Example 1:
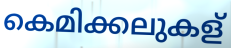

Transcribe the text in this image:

കെമിക്കലുകള്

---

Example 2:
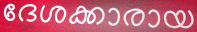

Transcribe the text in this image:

ദേശക്കാരായ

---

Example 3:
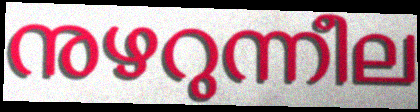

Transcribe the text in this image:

നുഴറുന്നീല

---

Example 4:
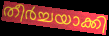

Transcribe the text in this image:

തീർച്ചയാക്കി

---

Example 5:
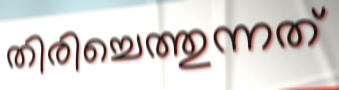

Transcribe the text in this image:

തിരിച്ചെത്തുന്നത്